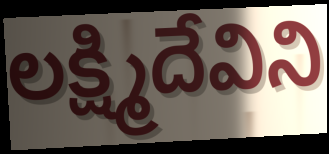
లక్ష్మిదేవిని